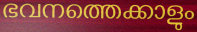
ഭവനത്തെക്കാളും